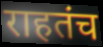
राहतंच